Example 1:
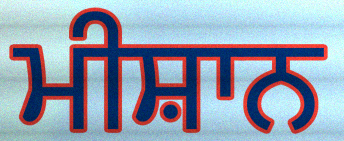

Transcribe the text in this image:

ਮੀਸ਼ਾਨ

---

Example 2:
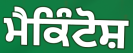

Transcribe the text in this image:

ਮੈਕਿੰਟੋਸ਼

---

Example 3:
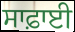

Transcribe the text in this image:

ਸਾਫ਼ਾਈ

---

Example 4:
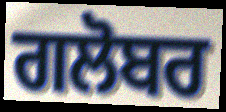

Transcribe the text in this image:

ਗਲੋਬਰ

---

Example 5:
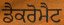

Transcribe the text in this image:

ਡੈਕਰੋਮੈਟ